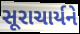
સૂરાચાર્યને